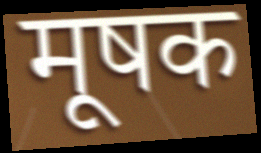
मूषक